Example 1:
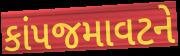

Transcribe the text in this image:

કાંપજમાવટને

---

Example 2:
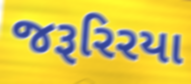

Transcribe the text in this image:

જરૂરિરયા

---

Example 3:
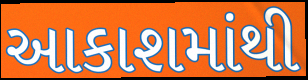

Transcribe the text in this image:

આકાશમાંથી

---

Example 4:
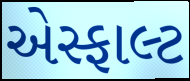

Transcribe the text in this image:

એસ્ફાલ્ટ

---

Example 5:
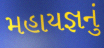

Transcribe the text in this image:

મહાયજ્ઞનું